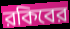
রকিবের